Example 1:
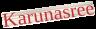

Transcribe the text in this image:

Karunasree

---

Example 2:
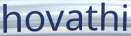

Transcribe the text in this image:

hovathi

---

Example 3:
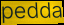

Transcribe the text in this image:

pedda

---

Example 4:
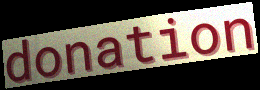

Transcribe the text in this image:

donation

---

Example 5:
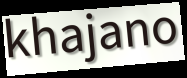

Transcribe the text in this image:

khajano